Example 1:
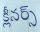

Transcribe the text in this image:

క్లీనర్స్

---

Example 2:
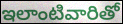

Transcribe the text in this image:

ఇలాంటివారితో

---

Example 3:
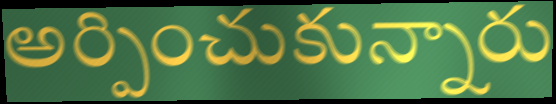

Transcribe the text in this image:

అర్పించుకున్నారు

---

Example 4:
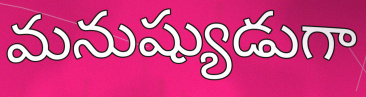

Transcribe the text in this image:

మనుష్యుడుగా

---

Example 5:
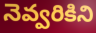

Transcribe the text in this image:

నెవ్వరికిని